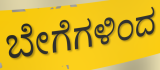
ಬೇಗೆಗಳಿಂದ